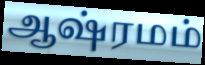
ஆஷ்ரமம்